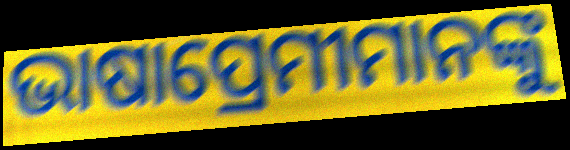
ଭାଷାପ୍ରେମୀମାନଙ୍କୁ